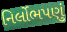
નિર્લોભપણું